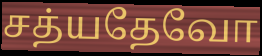
சத்யதேவோ